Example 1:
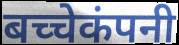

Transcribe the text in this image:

बच्चेकंपनी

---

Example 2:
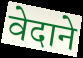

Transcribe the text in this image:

वेदाने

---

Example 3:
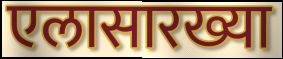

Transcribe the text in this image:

एलासारख्या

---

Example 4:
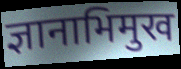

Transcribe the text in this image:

ज्ञानाभिमुख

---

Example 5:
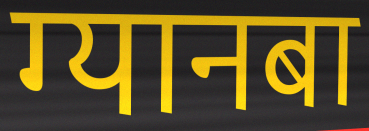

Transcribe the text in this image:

ग्यानबा